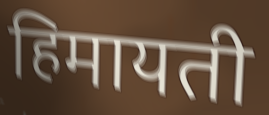
हिमायती